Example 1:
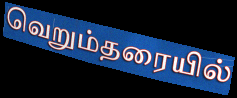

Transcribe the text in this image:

வெறும்தரையில்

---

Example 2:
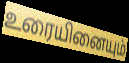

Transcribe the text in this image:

உரையினையும்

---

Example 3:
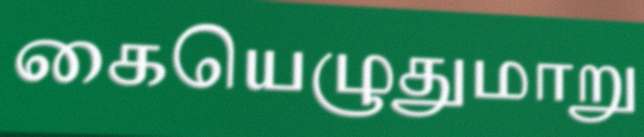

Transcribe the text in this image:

கையெழுதுமாறு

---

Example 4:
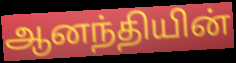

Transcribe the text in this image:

ஆனந்தியின்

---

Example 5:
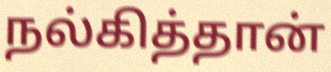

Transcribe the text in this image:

நல்கித்தான்